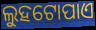
ଲୁହଟୋପାଏ